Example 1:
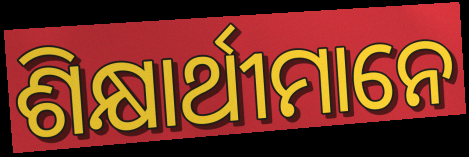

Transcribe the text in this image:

ଶିକ୍ଷାର୍ଥୀମାନେ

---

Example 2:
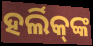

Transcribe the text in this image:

ହର୍ଲିକ୍‌ଙ୍କ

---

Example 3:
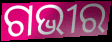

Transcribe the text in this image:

ଗଭୀର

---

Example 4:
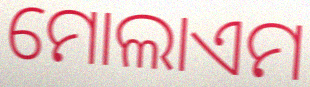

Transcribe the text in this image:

ମୋଲାଏମ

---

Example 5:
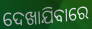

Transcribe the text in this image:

ଦେଖାଯିବାରେ